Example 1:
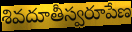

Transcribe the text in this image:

శివదూతీస్వరూపేణ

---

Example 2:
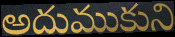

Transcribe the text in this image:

అదుముకుని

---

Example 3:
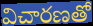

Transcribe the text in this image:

విచారణతో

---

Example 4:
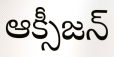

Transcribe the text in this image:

ఆక్సీజన్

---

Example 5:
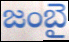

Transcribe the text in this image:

జంబై